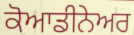
ਕੋਆਡੀਨੇਅਰ